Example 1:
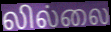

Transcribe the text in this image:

லில்லை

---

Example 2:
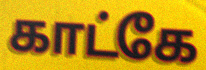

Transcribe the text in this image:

காட்கே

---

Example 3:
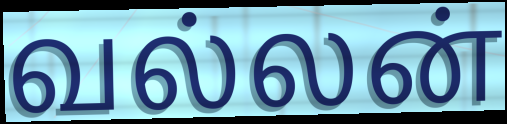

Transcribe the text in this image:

வல்லன்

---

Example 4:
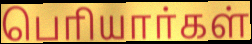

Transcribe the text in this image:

பெரியார்கள்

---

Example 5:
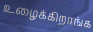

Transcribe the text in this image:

உழைக்கிறாங்க